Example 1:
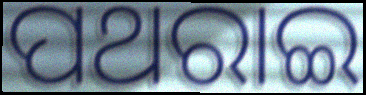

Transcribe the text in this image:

ପଥରାଇ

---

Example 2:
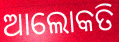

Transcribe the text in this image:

ଆଲୋକତି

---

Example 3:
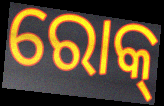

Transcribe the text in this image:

ରୋକ୍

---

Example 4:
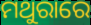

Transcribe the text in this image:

ମଥୁରାରେ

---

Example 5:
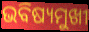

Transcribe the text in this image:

ଭବିଷ୍ୟମୁଖୀ